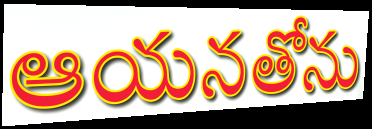
ఆయనతోను